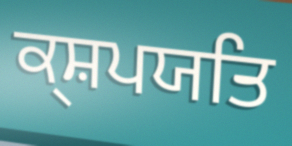
ਕ੍ਸ਼ਪਯਤਿ